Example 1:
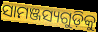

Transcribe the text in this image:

ସାମଞ୍ଜସ୍ୟଗୁଡ଼ିକୁ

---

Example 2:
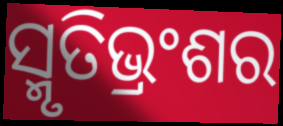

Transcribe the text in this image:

ସ୍ମୃତିଭ୍ରଂଶର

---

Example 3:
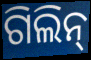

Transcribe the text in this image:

ଗିଲିନ୍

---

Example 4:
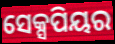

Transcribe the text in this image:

ସେକ୍ସପିୟର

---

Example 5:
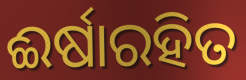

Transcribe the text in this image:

ଈର୍ଷାରହିତ